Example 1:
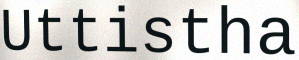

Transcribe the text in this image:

Uttistha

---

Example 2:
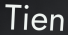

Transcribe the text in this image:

Tien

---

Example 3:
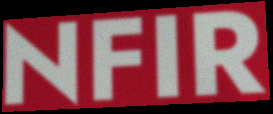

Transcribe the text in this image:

NFIR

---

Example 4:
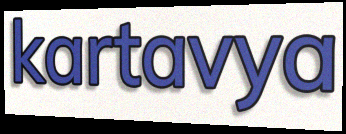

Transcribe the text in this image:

kartavya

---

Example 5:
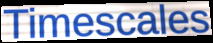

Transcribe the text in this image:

Timescales